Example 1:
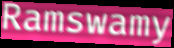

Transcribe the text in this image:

Ramswamy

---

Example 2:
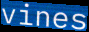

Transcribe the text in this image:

vines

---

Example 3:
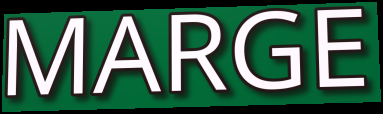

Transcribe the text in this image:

MARGE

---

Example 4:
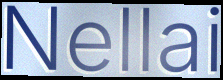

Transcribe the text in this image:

Nellai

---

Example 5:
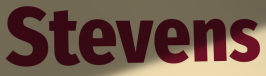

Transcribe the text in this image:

Stevens